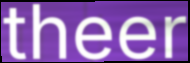
theer